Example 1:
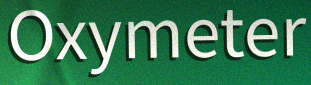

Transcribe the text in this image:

Oxymeter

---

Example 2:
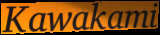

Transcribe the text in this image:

Kawakami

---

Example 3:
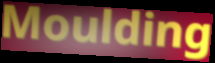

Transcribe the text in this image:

Moulding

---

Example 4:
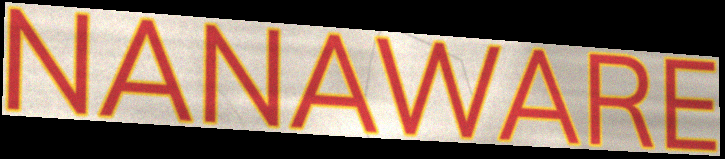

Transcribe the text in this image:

NANAWARE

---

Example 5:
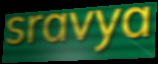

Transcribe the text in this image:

sravya